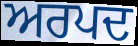
ਅਰਪਦ